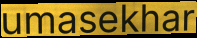
umasekhar